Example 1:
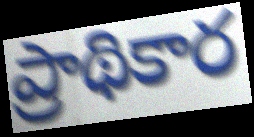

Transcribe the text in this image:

ప్రాథికార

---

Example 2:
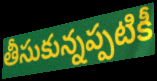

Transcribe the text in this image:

తీసుకున్నప్పటికీ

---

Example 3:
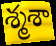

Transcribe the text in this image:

శ్మశా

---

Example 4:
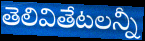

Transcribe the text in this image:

తెలివితేటలన్నీ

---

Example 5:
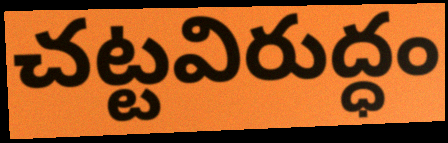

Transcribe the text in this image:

చట్టవిరుద్ధం